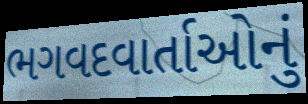
ભગવદવાર્તાઓનું